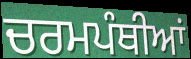
ਚਰਮਪੰਥੀਆਂ